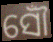
ସୌଁ